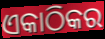
ଏକାଠିକର